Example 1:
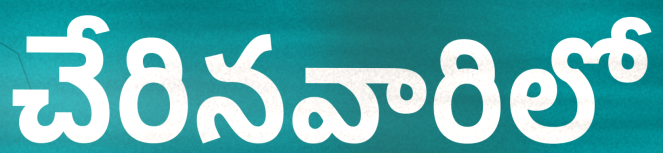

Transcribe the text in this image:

చేరినవారిలో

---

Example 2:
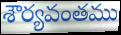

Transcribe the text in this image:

శౌర్యవంతము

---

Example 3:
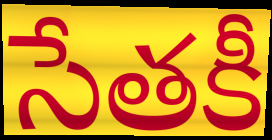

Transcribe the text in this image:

సేతకీ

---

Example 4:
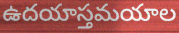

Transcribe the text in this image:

ఉదయాస్తమయాల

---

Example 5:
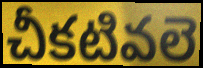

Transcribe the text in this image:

చీకటివలె